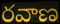
రవాణ